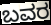
ಬವರ